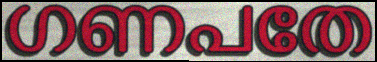
ഗണപതേ